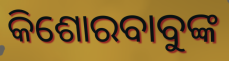
କିଶୋରବାବୁଙ୍କ